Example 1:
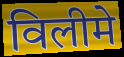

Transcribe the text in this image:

विलीमे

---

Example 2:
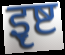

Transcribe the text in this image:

इृष्ट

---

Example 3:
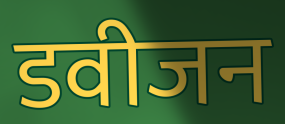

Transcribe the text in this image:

डवीजन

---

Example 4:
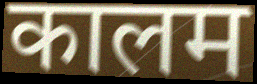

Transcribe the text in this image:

कालम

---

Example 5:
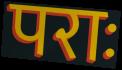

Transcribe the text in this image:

पराः